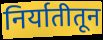
निर्यातीतून